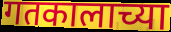
गतकालाच्या